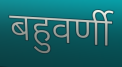
बहुवर्णी